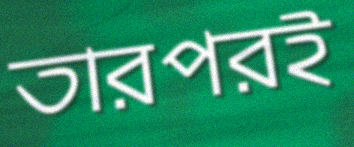
তারপরই